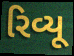
રિવ્યૂ